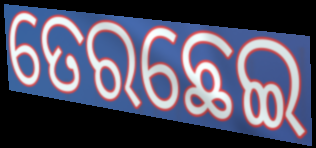
ତେରଛେଇ